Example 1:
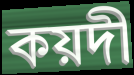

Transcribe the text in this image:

কয়দী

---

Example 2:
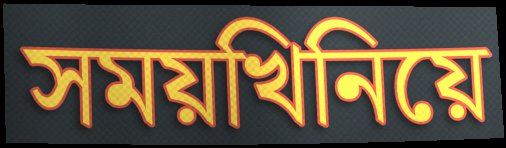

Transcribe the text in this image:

সময়খিনিয়ে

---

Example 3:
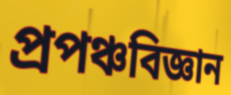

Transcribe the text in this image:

প্ৰপঞ্চবিজ্ঞান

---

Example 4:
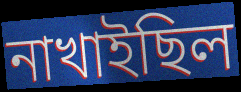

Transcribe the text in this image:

নাখাইছিল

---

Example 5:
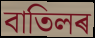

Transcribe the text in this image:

বাতিলৰ